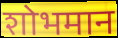
शोभमान